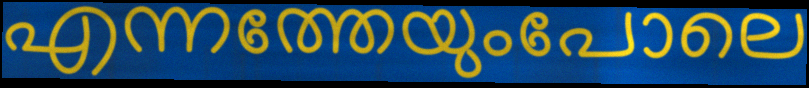
എന്നത്തേയുംപോലെ